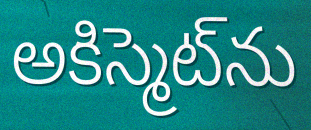
అకిస్మెట్‌ను